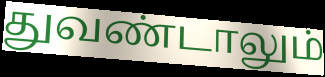
துவண்டாலும்